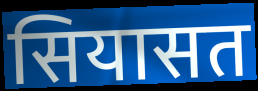
सियासत